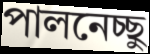
পালনেচ্ছু